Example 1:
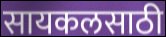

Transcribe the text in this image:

सायकलसाठी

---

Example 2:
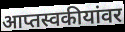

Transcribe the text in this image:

आप्तस्वकीयांवर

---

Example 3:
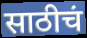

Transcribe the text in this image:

साठीचं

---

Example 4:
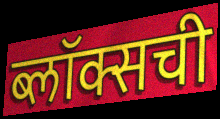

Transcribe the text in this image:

ब्लॉक्सची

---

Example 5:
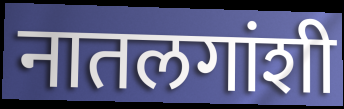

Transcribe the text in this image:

नातलगांशी